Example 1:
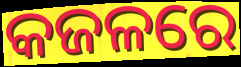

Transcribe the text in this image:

କଜଳରେ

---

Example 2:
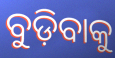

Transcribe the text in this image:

ବୁଡ଼ିବାକୁ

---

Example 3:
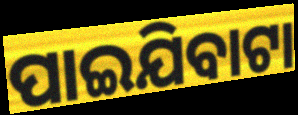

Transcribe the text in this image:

ପାଇଯିବାଟା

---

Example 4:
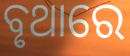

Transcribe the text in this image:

ବୃଥାରେ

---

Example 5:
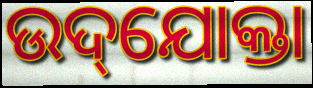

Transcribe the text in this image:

ଉଦ୍‌ଯୋକ୍ତା